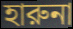
হারুনা